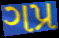
ગપ્ર